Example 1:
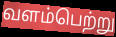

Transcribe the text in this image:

வளம்பெற்று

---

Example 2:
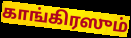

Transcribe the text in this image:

காங்கிரஸும்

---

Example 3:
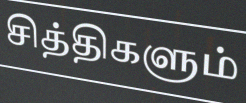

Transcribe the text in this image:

சித்திகளும்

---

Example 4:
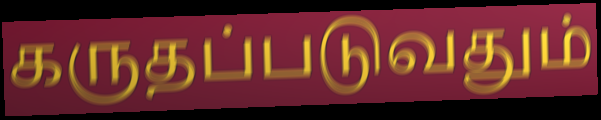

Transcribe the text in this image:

கருதப்படுவதும்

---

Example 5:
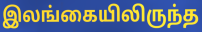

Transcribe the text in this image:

இலங்கையிலிருந்த